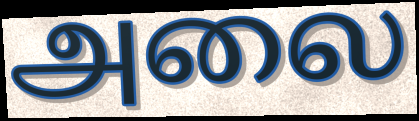
அலை